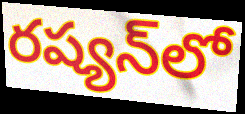
రష్యన్‌లో